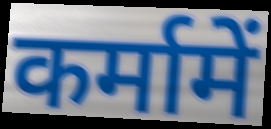
कर्मामें